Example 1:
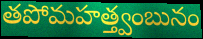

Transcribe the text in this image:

తపోమహత్త్వంబునం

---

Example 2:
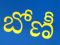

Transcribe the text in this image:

బోణీ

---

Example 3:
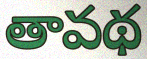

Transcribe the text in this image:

తావథ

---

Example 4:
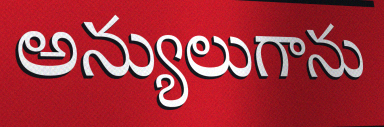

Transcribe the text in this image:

అన్యులుగాను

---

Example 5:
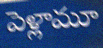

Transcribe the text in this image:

పెళ్లామూ